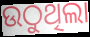
ଉଠୁଥିଲା